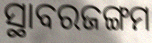
ସ୍ଥାବରଜଙ୍ଗମ